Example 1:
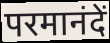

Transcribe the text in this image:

परमानंदें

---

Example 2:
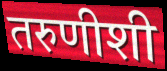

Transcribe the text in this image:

तरुणीशी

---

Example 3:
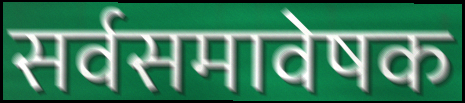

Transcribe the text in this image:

सर्वसमावेषक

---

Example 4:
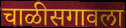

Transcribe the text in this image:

चाळीसगावला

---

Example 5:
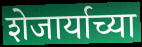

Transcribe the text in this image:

शेजार्याच्या